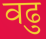
वढु